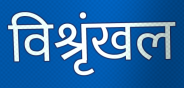
विश्रृंखल